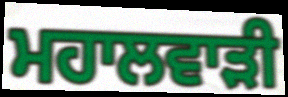
ਮਹਾਲਵਾੜੀ